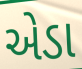
એડા